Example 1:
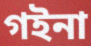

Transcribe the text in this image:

গইনা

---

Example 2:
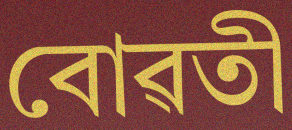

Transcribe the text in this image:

বোৱতী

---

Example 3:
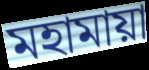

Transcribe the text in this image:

মহামায়া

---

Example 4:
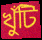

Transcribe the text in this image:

খুঁটি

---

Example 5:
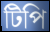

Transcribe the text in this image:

টিপি